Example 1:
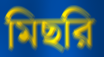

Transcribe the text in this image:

মিছরি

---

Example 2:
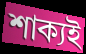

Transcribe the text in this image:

শাক্যই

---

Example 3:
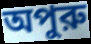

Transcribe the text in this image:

অপুরু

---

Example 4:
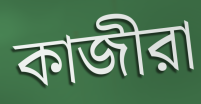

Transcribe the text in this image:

কাজীরা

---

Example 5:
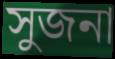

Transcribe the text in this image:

সুজনা